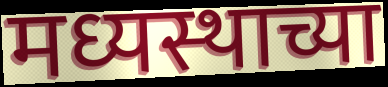
मध्यस्थाच्या